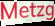
Metzg